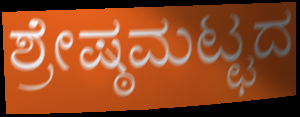
ಶ್ರೇಷ್ಠಮಟ್ಟದ